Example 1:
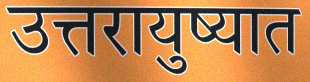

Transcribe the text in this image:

उत्तरायुष्यात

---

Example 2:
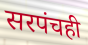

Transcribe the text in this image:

सरपंचही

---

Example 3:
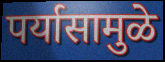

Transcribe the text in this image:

पर्यासामुळे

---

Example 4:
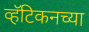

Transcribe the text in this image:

व्हॅटिकनच्या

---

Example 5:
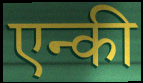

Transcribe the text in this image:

एन्की